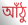
আঁঠু